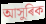
আসুৰিক